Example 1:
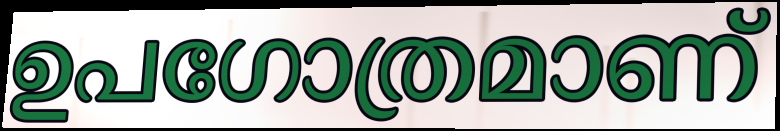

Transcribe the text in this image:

ഉപഗോത്രമാണ്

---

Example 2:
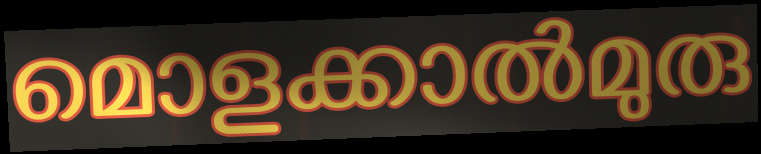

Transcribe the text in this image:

മൊളക്കാൽമുരു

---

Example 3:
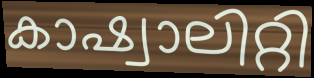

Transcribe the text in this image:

കാഷ്വാലിറ്റി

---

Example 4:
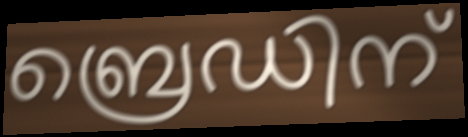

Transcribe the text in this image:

ബ്രെഡിന്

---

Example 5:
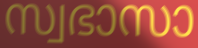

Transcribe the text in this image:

സ്വഭാസാ